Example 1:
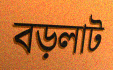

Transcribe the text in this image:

বড়লাট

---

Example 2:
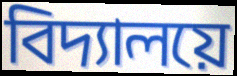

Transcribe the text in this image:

বিদ্যালয়ে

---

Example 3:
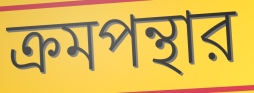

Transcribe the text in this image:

ক্রমপন্থার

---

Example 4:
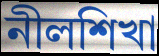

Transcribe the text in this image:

নীলশিখা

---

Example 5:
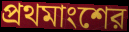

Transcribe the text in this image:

প্রথমাংশের